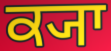
ਕ੍ਯਾ